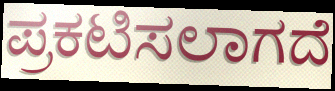
ಪ್ರಕಟಿಸಲಾಗದೆ